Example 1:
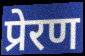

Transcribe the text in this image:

प्रेरण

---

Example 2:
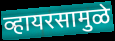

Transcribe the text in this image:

व्हायरसामुळे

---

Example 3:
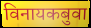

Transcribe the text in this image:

विनायकबुवा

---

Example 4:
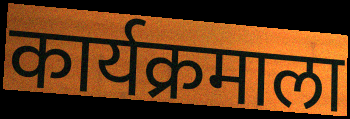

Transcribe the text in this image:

कार्यक्रमाला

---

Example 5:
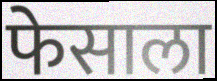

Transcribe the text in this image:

फेसाला